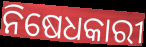
ନିଷେଧକାରୀ